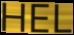
HEL